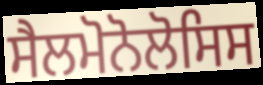
ਸੈਲਮੋਨੋਲੋਸਿਸ